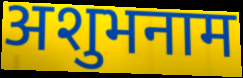
अशुभनाम